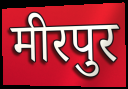
मीरपुर